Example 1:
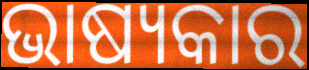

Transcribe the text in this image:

ଭାଷ୍ୟକାର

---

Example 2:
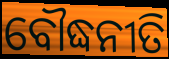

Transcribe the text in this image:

ବୌଦ୍ଧନୀତି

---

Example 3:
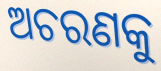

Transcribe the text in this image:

ଅଚରଣକୁ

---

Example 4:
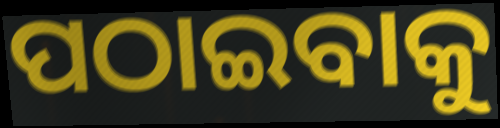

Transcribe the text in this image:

ପଠାଇବାକୁ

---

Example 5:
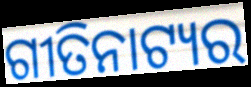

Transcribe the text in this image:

ଗୀତିନାଟ୍ୟର